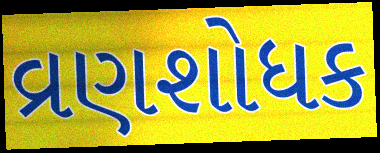
વ્રણશોધક